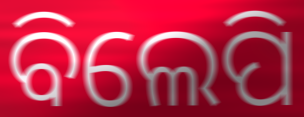
ବିଲେପି